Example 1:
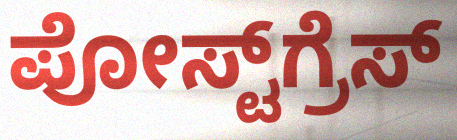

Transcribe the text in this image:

ಪೋಸ್ಟ್‌ಗ್ರೆಸ್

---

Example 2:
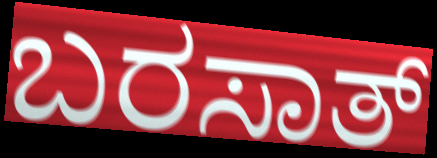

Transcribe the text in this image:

ಬರಸಾತ್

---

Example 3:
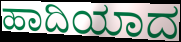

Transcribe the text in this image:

ಹಾದಿಯಾದ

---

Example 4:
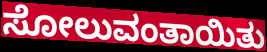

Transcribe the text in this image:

ಸೋಲುವಂತಾಯಿತು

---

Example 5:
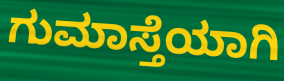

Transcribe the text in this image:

ಗುಮಾಸ್ತೆಯಾಗಿ